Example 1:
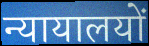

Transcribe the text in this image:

न्यायालयों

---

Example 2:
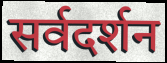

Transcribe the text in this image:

सर्वदर्शन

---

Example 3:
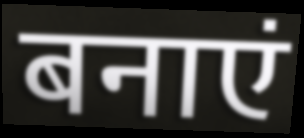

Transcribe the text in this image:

बनाएं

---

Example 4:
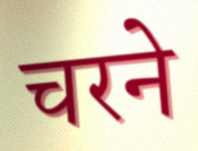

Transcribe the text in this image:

चरने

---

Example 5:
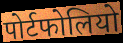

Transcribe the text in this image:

पोर्टफोलियो